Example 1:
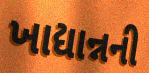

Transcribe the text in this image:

ખાદ્યાન્નની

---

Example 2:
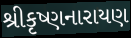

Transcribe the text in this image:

શ્રીકૃષ્ણનારાયણ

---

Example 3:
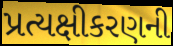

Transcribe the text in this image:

પ્રત્યક્ષીકરણની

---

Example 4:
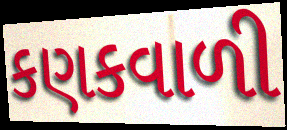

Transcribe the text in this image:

કણકવાળી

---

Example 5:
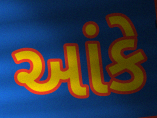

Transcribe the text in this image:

આંકે